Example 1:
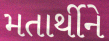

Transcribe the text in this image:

મતાર્થીને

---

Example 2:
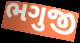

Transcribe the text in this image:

ભગુજી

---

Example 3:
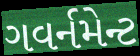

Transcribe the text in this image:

ગવર્નમેન્ટ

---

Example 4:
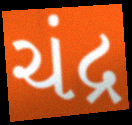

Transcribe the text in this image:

ચંદ્ર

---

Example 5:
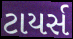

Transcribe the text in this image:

ટાયર્સ